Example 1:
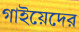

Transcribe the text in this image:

গাইয়েদের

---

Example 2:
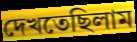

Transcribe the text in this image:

দেখতেছিলাম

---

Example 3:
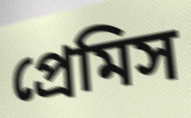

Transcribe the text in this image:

প্রেমিস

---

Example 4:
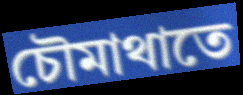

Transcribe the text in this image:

চৌমাথাতে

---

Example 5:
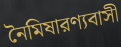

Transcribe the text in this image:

নৈমিষারণ্যবাসী